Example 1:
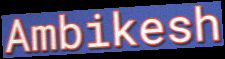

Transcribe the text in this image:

Ambikesh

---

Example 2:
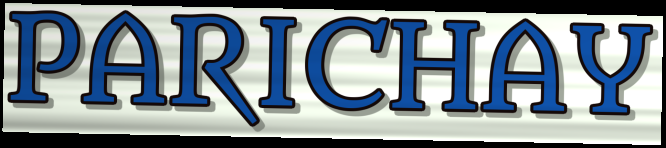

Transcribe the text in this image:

PARICHAY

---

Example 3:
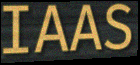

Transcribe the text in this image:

IAAS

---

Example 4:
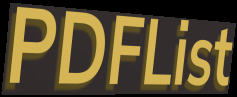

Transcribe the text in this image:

PDFList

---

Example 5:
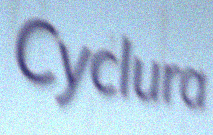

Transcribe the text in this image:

Cyclura